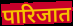
पारिजात